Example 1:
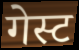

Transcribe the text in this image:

गेस्ट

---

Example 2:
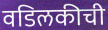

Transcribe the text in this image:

वडिलकीची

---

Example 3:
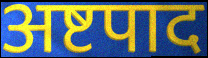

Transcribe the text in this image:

अष्टपाद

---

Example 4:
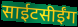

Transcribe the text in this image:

साईटसीईंग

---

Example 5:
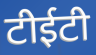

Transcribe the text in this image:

टीईटी